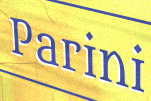
Parini